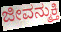
ಜೀವನ್ಮುಕ್ತಿ